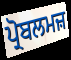
ਪ੍ਰੋਬਲਮਜ਼